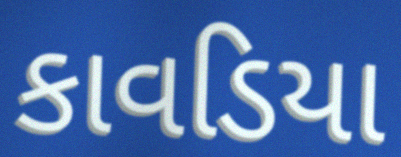
કાવડિયા